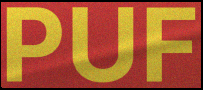
PUF